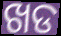
ଖଡ